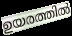
ഉയരത്തിൽ